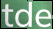
tde